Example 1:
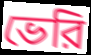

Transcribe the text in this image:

ভেরি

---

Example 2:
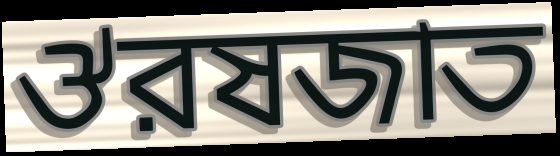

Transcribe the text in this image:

ঔরষজাত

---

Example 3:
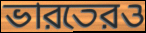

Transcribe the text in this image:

ভারতেরও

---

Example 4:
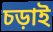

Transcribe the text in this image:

চড়াই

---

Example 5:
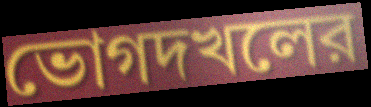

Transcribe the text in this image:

ভোগদখলের